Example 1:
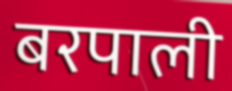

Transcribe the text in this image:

बरपाली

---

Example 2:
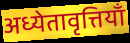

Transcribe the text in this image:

अध्येतावृत्तियाँ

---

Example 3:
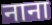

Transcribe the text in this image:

नाना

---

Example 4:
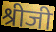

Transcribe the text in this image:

श्रीजी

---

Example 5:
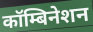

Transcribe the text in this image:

कॉम्बिनेशन